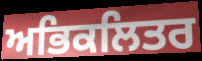
ਅਭਿਕਲਿਤਰ